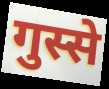
गुस्से